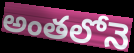
అంతలోనె